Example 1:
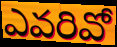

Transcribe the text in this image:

ఎవరివో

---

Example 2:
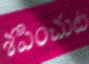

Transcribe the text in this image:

శపించుట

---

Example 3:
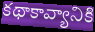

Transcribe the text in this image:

కథాకావ్యానికి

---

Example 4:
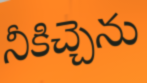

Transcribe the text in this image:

నీకిచ్చెను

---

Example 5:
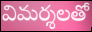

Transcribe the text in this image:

విమర్శలతో